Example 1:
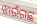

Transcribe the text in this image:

ଝାଉଁଗଛ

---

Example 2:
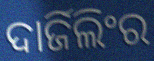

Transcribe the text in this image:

ଦାର୍ଜିଲିଂର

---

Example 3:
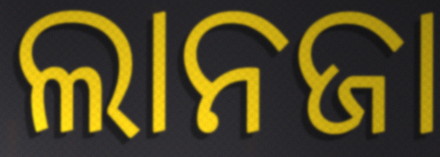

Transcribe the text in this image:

ଲାନଜା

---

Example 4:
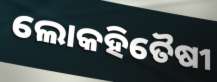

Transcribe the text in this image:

ଲୋକହିତୈଷୀ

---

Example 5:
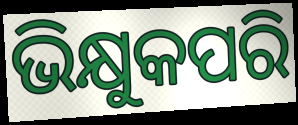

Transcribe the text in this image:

ଭିକ୍ଷୁକପରି